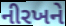
નીરખને